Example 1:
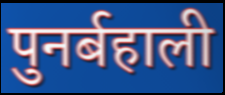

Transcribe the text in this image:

पुनर्बहाली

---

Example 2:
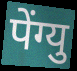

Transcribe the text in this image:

पेंग्यु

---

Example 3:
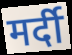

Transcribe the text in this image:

मर्दी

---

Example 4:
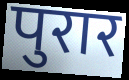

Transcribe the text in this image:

पुरार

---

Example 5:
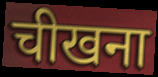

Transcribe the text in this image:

चीखना